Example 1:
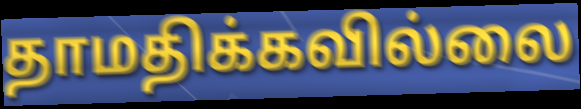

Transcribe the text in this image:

தாமதிக்கவில்லை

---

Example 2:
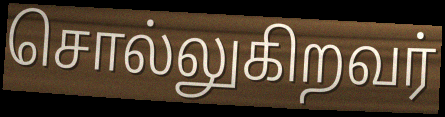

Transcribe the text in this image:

சொல்லுகிறவர்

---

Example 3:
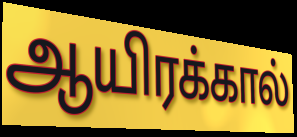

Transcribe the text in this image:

ஆயிரக்கால்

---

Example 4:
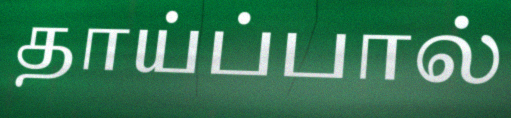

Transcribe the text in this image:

தாய்ப்பால்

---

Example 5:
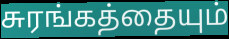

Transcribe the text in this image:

சுரங்கத்தையும்